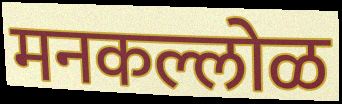
मनकल्लोळ